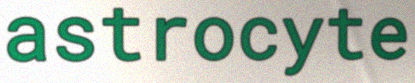
astrocyte